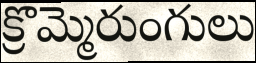
క్రొమ్మెరుంగులు